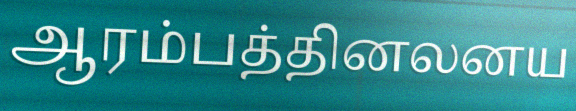
ஆரம்பத்தினலனய